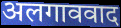
अलगाववाद